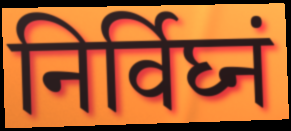
निर्विघ्नं